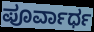
ಪೂರ್ವಾರ್ಧ